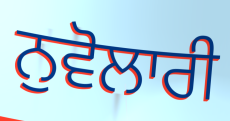
ਨੁਵੋਲਾਰੀ